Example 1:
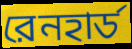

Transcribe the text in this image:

রেনহার্ড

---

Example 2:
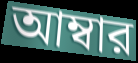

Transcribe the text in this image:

আম্বার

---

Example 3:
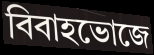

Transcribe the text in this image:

বিবাহভোজে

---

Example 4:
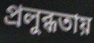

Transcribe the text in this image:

প্রলুব্ধতায়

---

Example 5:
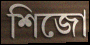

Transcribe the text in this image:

শিজো